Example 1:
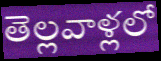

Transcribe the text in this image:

తెల్లవాళ్లలో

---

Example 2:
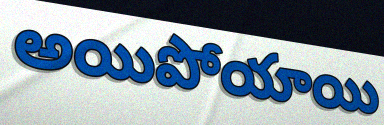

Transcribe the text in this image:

అయిపోయాయి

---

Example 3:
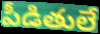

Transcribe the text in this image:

పీడితులే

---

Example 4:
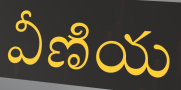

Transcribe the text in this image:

వీణియ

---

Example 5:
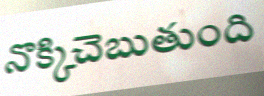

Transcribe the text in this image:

నొక్కిచెబుతుంది